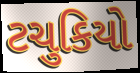
ટચુકિયો